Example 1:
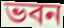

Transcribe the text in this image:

ভবন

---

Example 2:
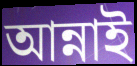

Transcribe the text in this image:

আন্নাই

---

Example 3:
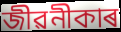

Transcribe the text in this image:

জীৱনীকাৰ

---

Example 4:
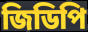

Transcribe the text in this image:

জিডিপি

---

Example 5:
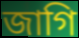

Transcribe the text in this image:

জাগি